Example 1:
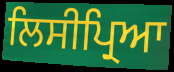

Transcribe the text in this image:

ਲਿਸੀਪ੍ਰਿਆ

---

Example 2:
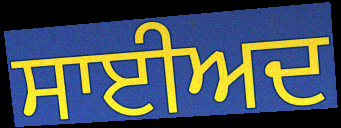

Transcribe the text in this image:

ਸਾਈਅਦ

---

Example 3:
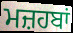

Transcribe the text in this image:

ਮਜ਼ਹਬਾਂ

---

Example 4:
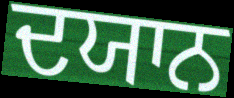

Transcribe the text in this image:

ਦਯਾਨ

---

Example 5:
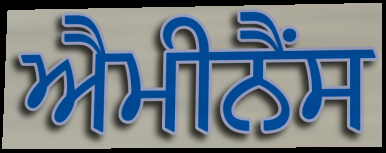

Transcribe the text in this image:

ਐਮੀਨੈਂਸ